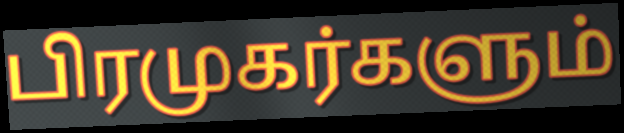
பிரமுகர்களும்